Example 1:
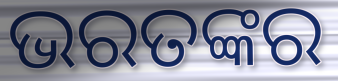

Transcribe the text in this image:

ଭରତଙ୍କର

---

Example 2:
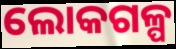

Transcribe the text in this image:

ଲୋକଗଳ୍ପ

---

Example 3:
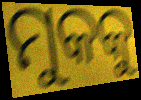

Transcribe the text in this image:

ମୁକକୁ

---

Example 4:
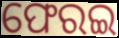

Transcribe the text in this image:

ଫେରଇ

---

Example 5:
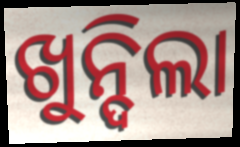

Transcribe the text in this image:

ଖୁନ୍ଦିଲା